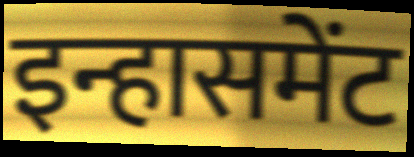
इन्हासमेंट